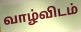
வாழ்விடம்